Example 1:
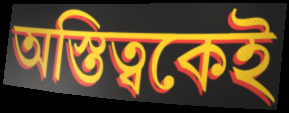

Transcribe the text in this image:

অস্তিত্বকেই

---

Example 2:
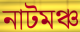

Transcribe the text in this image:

নাটমঞ্চ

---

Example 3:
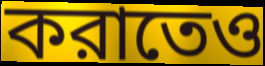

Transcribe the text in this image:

করাতেও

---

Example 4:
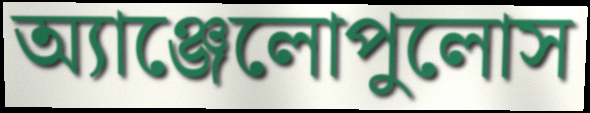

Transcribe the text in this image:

অ্যাঞ্জেলোপুলোস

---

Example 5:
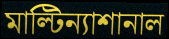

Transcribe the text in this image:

মাল্টিন্যাশানাল